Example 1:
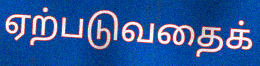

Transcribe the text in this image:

ஏற்படுவதைக்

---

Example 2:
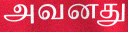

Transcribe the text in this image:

அவனது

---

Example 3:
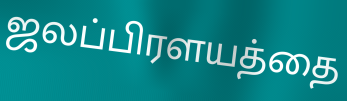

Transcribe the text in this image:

ஜலப்பிரளயத்தை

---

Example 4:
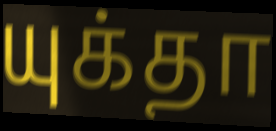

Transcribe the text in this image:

யுக்தா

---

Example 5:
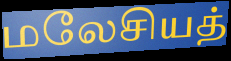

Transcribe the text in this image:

மலேசியத்